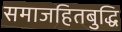
समाजहितबुद्धि